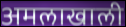
अमलाखाली